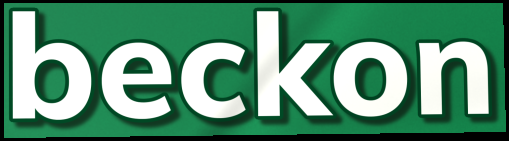
beckon